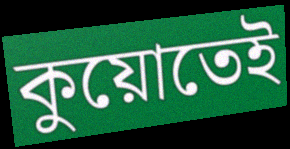
কুয়োতেই